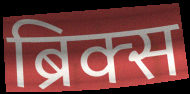
ब्रिक्‍स